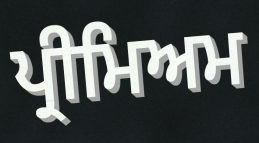
ਪ੍ਰੀਮਿਅਮ